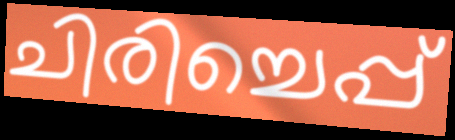
ചിരിച്ചെപ്പ്